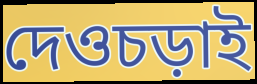
দেওচড়াই